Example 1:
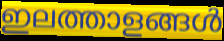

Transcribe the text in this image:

ഇലത്താളങ്ങൾ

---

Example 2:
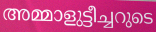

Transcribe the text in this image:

അമ്മാളുട്ടീച്ചറുടെ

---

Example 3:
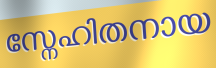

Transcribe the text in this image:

സ്നേഹിതനായ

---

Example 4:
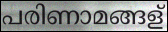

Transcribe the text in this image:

പരിണാമങ്ങള്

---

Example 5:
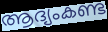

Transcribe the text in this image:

ആദ്യംകണ്ട